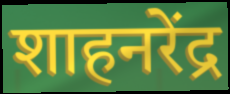
शाहनरेंद्र